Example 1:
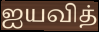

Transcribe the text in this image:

ஐயவித்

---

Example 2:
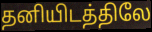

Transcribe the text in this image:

தனியிடத்திலே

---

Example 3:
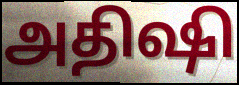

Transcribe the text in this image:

அதிஷி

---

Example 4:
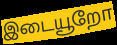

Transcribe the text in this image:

இடையூறோ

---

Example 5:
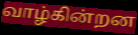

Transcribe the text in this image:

வாழ்கின்றன